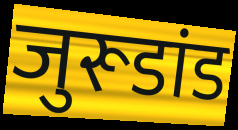
जुरूडांड